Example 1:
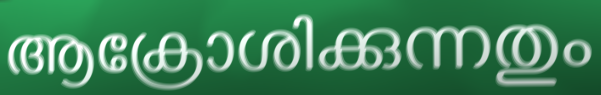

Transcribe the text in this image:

ആക്രോശിക്കുന്നതും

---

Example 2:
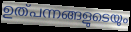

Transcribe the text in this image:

ഉത്പന്നങ്ങളുടെയും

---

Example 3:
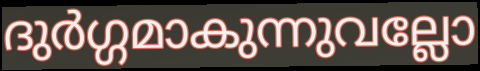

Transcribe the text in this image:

ദുർഗ്ഗമാകുന്നുവല്ലോ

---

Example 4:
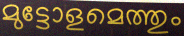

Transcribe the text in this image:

മുട്ടോളമെത്തും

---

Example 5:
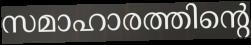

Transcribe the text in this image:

സമാഹാരത്തിന്റെ